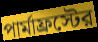
পার্মাফ্রস্টের